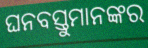
ଘନବସ୍ତୁମାନଙ୍କର